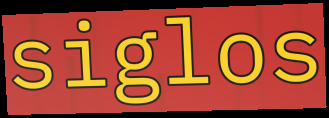
siglos